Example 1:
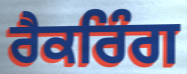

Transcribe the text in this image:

ਰੈਕਰਿੰਗ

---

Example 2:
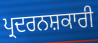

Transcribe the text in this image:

ਪ੍ਰਦਰਨਸ਼ਕਾਰੀ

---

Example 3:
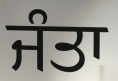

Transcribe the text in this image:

ਜੰਤਾ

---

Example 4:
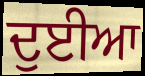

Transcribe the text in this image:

ਦੁਈਆ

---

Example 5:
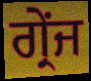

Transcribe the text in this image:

ਗ੍ਰੇਂਜ